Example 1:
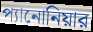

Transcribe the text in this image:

প্যানোনিয়ার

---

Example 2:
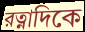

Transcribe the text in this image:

রত্নাদিকে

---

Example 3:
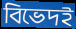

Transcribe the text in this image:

বিভেদই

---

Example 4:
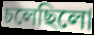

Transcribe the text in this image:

চলেছিলো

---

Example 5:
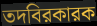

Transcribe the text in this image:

তদবিরকারক